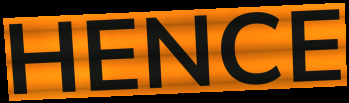
HENCE